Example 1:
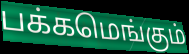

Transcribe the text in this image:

பக்கமெங்கும்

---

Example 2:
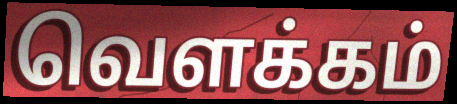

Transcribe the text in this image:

வெளக்கம்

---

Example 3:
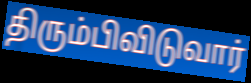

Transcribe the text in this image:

திரும்பிவிடுவார்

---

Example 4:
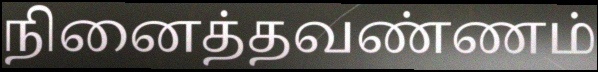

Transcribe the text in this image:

நினைத்தவண்ணம்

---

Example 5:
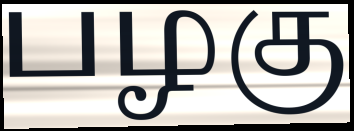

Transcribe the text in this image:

பழகு